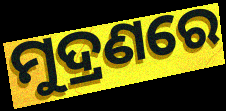
ମୁଦ୍ରଣରେ